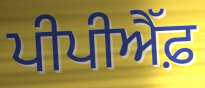
ਪੀਪੀਐੱਫ਼